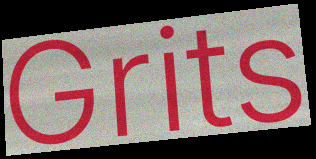
Grits